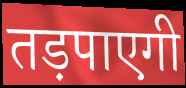
तड़पाएगी